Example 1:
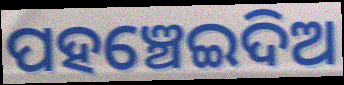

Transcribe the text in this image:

ପହଞ୍ଚେଇଦିଅ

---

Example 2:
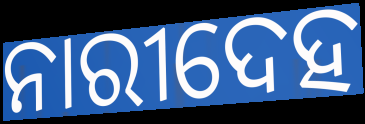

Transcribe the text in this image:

ନାରୀଦେହ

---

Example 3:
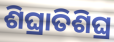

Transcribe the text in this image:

ଶିଘ୍ରାତିଶିଘ୍ର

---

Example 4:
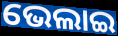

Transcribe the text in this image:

ଭେଲାଇ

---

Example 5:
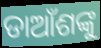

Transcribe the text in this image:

ଡାଆଁଶଙ୍କୁ